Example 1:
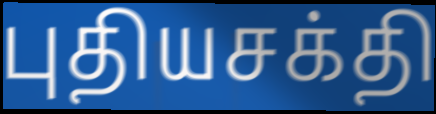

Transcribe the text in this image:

புதியசக்தி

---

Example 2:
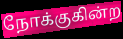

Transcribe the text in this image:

நோக்குகின்ற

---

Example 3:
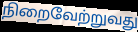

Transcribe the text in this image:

நிறைவேற்றுவது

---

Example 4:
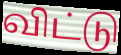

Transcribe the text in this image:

விட்டு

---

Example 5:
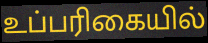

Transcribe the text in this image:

உப்பரிகையில்